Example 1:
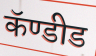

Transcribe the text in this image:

कॅण्डीड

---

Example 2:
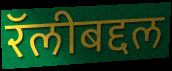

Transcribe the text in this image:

रॅलीबद्दल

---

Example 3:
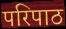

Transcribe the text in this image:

परिपाठ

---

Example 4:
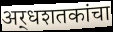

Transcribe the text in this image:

अर्धशतकांचा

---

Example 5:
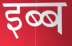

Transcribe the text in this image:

इब्ब